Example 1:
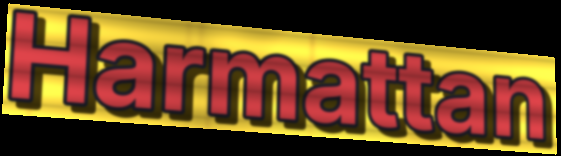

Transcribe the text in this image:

Harmattan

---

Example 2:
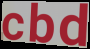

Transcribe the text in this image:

cbd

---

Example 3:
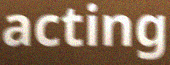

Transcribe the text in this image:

acting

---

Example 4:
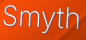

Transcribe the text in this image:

Smyth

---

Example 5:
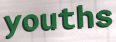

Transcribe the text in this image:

youths